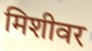
मिशीवर